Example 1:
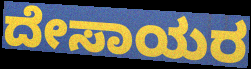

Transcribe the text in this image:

ದೇಸಾಯರ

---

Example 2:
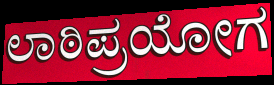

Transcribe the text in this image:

ಲಾಠಿಪ್ರಯೋಗ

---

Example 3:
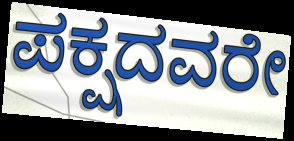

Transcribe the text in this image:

ಪಕ್ಷದವರೇ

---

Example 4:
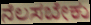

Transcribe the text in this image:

ನೆಲಸಬೇಕು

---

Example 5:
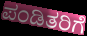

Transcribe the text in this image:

ಪಂಡಿತರಿಗೆ